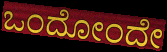
ಒಂದೋಂದೇ